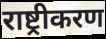
राष्ट्रीकरण